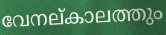
വേനല്കാലത്തും